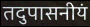
तदुपासनीयं